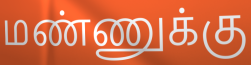
மண்ணுக்கு